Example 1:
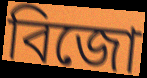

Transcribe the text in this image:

বিজো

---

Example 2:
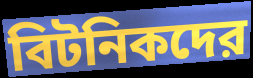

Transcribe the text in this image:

বিটনিকদের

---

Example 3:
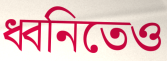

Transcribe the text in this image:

ধ্বনিতেও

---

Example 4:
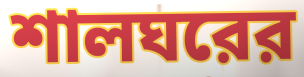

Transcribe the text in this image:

শালঘরের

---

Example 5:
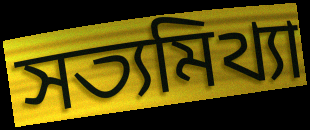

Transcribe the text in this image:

সত্যমিথ্যা